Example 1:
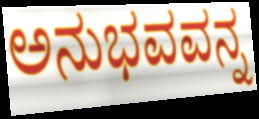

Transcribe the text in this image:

ಅನುಭವವನ್ನ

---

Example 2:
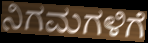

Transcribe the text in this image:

ನಿಗಮಗಳಿಗೆ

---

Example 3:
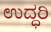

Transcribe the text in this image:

ಉದ್ಧರಿ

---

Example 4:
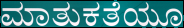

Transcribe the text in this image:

ಮಾತುಕತೆಯೂ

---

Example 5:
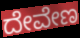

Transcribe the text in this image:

ದೇವೇಣ